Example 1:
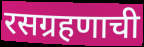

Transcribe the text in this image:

रसग्रहणाची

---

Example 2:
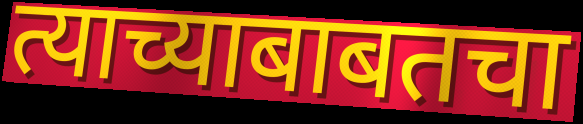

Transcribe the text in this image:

त्याच्याबाबतचा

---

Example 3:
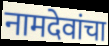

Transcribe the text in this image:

नामदेवांचा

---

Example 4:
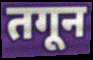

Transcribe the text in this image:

तगून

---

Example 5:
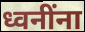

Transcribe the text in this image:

ध्वनींना